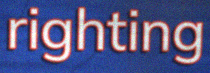
righting